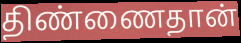
திண்ணைதான்